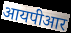
आयपीआर